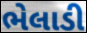
ભેલાડી